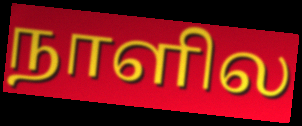
நாளில